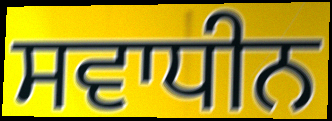
ਸਵਾਧੀਨ